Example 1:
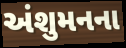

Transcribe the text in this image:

અંશુમનના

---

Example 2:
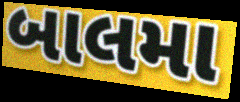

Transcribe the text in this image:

બાલમા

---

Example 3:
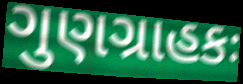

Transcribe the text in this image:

ગુણગ્રાહકઃ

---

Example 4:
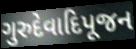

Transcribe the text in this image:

ગુરુદેવાદિપૂજન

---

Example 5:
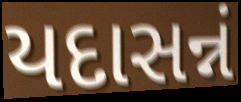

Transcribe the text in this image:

યદાસન્નં